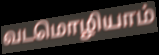
வடமொழியாம்